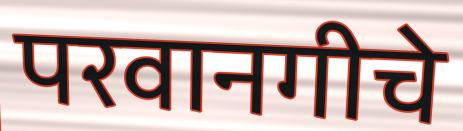
परवानगीचे